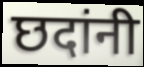
छदांनी